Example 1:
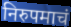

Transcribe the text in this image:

निरुपमाचं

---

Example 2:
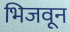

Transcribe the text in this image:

भिजवून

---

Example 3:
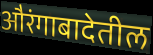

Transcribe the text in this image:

औरंगाबादेतील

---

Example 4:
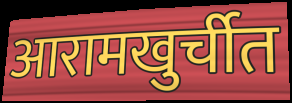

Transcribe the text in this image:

आरामखुर्चीत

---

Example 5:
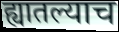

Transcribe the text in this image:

ह्यातल्याच